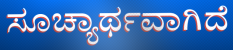
ಸೂಚ್ಯಾರ್ಥವಾಗಿದೆ